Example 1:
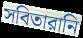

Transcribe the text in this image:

সবিতারানি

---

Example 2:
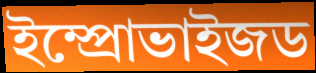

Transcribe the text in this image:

ইম্প্রোভাইজড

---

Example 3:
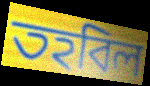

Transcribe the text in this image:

তহবিল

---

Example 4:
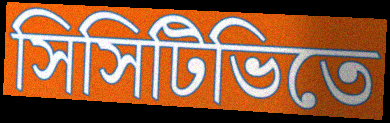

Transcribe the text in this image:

সিসিটিভিতে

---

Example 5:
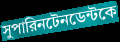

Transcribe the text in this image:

সুপারিনটেনডেন্টকে